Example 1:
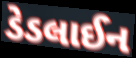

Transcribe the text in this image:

ડેડલાઈન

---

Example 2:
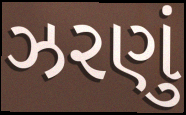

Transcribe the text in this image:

ઝરણું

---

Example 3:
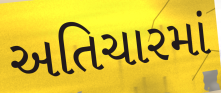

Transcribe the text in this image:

અતિચારમાં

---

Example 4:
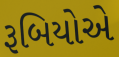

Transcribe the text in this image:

રૂબિયોએ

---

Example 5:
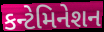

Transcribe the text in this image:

કન્ટેમિનેશન